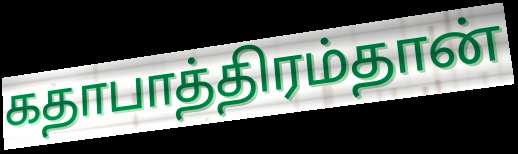
கதாபாத்திரம்தான்